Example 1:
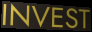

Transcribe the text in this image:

INVEST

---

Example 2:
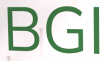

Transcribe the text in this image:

BGI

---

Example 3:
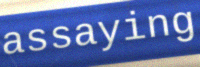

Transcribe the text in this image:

assaying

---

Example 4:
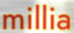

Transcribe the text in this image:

millia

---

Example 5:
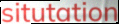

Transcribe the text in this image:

situtation